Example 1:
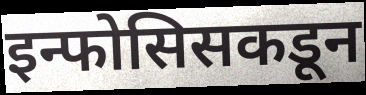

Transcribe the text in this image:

इन्फोसिसकडून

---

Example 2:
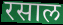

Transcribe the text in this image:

रसाल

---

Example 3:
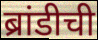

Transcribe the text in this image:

ब्रांडीची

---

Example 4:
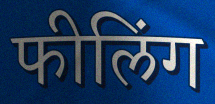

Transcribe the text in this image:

फीलिंग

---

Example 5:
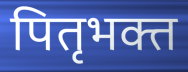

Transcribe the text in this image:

पितृभक्त